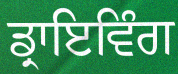
ਡ੍ਰਾਇਵਿੰਗ